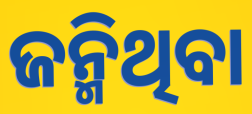
ଜନ୍ମିଥିବା